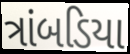
ત્રાંબડિયા